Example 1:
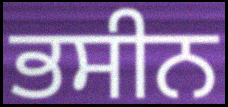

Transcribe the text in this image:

ਭਸੀਨ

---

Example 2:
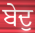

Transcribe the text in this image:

ਬੇਦੁ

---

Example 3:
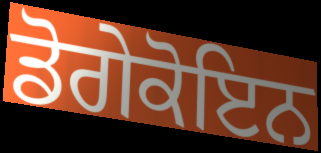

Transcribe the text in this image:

ਡੋਗੇਕੋਇਨ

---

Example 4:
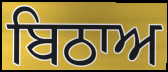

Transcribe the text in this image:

ਬਿਠਾਅ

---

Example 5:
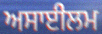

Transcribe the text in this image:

ਅਸਾਈਲਮ